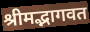
श्रीमद्भागवत